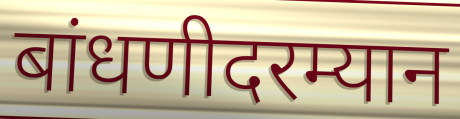
बांधणीदरम्यान